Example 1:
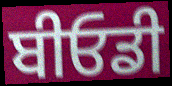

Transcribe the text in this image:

ਬੀਓਡੀ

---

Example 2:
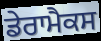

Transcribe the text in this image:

ਡੇਰਾਮੈਕਸ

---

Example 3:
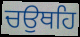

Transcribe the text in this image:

ਚਉਥਹਿ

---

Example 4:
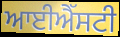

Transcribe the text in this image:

ਆਈਐੱਸਟੀ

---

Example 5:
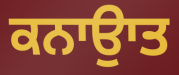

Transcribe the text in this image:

ਕਨਾਉਾਤ